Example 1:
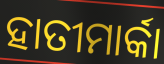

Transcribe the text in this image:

ହାତୀମାର୍କା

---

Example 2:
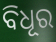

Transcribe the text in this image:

ବିଧୂର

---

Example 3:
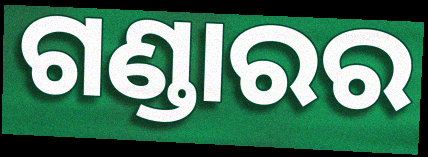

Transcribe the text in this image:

ଗଣ୍ଡାରର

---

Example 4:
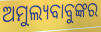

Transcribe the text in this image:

ଅମୁଲ୍ୟବାବୁଙ୍କର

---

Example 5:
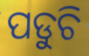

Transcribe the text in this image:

ପଡୁଚି